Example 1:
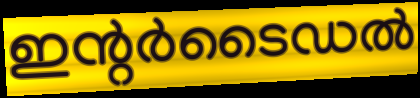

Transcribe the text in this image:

ഇന്റർടൈഡൽ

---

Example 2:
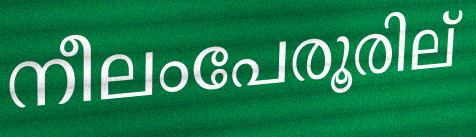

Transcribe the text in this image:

നീലംപേരൂരില്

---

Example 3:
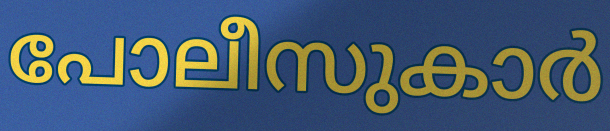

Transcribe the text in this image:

പോലീസുകാർ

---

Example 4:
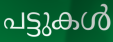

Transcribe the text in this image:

പട്ടുകൾ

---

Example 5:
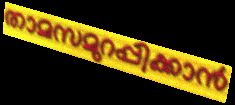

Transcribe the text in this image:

താമസമുറപ്പിക്കാൻ